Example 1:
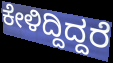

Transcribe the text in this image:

ಕೇಳಿದ್ದಿದ್ದರೆ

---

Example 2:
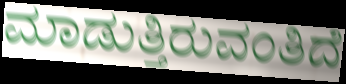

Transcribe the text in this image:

ಮಾಡುತ್ತಿರುವಂತಿದೆ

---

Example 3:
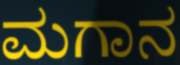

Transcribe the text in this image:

ಮಗಾನ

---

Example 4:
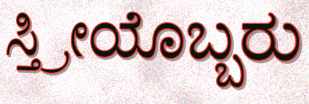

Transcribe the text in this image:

ಸ್ತ್ರೀಯೊಬ್ಬರು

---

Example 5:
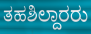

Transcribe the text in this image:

ತಹಶಿಲ್ದಾರರು